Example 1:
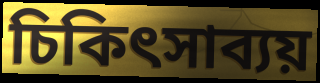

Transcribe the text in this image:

চিকিৎসাব্যয়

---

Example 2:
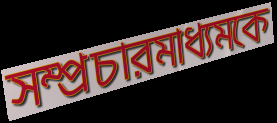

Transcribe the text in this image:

সম্প্রচারমাধ্যমকে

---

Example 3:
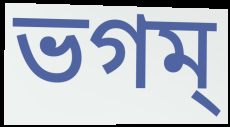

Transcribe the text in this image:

ভগম্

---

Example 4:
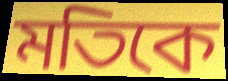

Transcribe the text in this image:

মতিকে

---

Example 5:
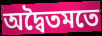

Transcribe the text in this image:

অদ্বৈতমতে